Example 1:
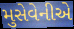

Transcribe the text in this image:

મુસેવેનીએ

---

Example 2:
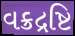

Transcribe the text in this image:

વક્રદ્રષ્ટિ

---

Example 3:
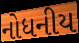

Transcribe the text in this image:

નોધનીય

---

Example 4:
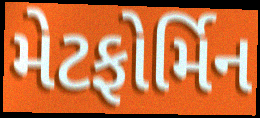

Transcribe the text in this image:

મેટફોર્મિન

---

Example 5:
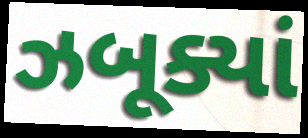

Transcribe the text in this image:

ઝબૂક્યાં